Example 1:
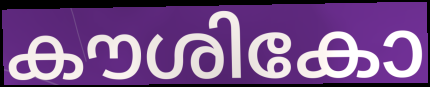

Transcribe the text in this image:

കൗശികോ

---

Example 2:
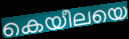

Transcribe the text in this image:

കെയീലയെ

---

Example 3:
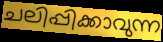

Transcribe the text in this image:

ചലിപ്പിക്കാവുന്ന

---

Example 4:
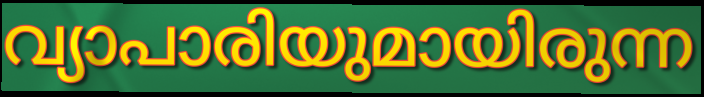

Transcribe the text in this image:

വ്യാപാരിയുമായിരുന്ന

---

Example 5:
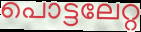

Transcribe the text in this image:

പൊട്ടലേറ്റ